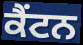
ਕੈਂਟਨ